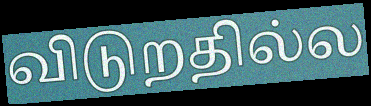
விடுறதில்ல